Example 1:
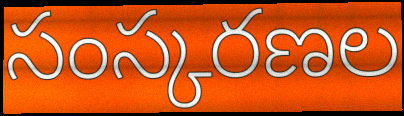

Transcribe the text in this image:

సంస్కరణల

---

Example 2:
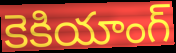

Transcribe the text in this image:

కెకియాంగ్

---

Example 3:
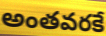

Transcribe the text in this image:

అంతవరకే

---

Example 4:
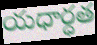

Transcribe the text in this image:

యధార్ధత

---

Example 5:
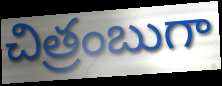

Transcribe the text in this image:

చిత్రంబుగా